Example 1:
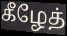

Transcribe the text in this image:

கீழேத்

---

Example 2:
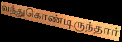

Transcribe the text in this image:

வந்துகொண்டிருந்தார்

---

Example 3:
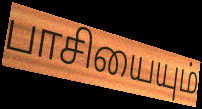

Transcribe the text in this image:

பாசியையும்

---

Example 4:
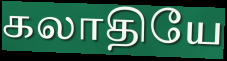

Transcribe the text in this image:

கலாதியே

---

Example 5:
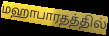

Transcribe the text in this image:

மஹாபாரதத்தில்